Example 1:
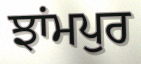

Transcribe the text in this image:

ਝਾਂਮਪੁਰ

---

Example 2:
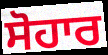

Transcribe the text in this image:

ਸੋਹਾਰ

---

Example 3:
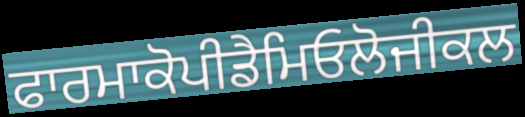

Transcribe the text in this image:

ਫਾਰਮਾਕੋਪੀਡੈਮਿਓਲੋਜੀਕਲ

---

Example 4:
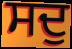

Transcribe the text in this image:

ਸਦੁ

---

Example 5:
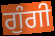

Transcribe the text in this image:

ਗੁੰਗੀ